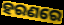
ହରଣରେ